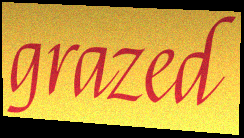
grazed